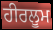
ਹੀਰਲੂਮ